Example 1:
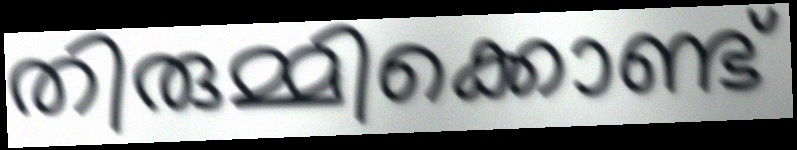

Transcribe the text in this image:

തിരുമ്മിക്കൊണ്ട്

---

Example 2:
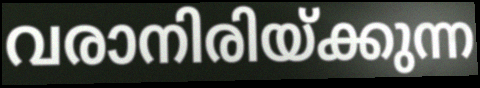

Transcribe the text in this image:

വരാനിരിയ്ക്കുന്ന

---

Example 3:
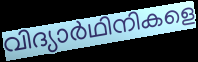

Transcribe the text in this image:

വിദ്യാർഥിനികളെ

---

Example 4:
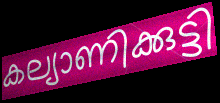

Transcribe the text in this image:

കല്യാണിക്കുട്ടി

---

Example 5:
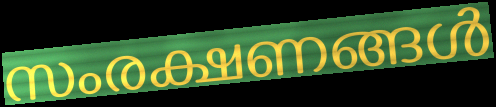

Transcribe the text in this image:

സംരക്ഷണങ്ങൾ